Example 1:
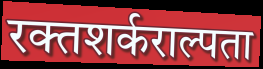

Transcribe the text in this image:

रक्तशर्कराल्पता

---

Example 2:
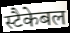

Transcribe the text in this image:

स्टैकेबल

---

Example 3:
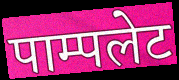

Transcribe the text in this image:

पाम्पलेट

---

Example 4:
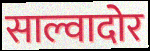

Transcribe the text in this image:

साल्वादोर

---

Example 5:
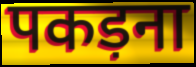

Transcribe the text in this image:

पकड़ना